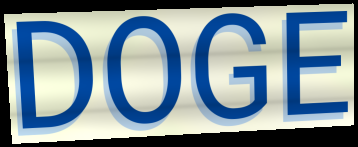
DOGE